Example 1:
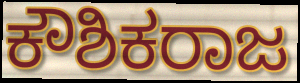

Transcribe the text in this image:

ಕೌಶಿಕರಾಜ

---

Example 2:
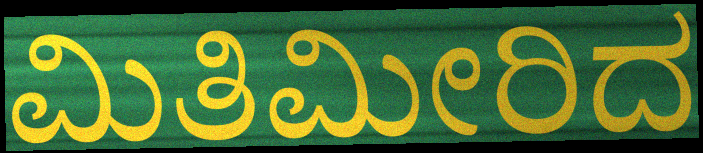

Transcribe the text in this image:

ಮಿತಿಮೀರಿದ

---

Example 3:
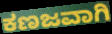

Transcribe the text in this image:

ಕಣಜವಾಗಿ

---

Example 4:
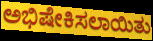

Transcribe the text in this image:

ಅಭಿಷೇಕಿಸಲಾಯಿತು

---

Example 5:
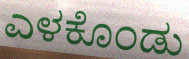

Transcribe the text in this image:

ಎಳಕೊಂಡು